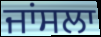
ਜਾਂਸਲਾ